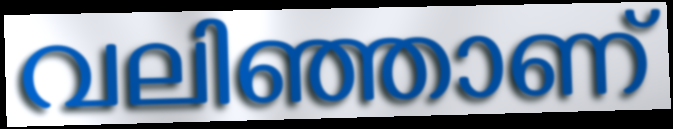
വലിഞ്ഞാണ്